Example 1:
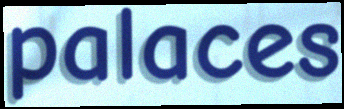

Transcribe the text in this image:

palaces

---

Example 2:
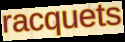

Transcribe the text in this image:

racquets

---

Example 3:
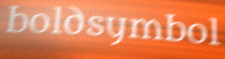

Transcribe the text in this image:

boldsymbol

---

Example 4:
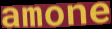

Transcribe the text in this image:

amone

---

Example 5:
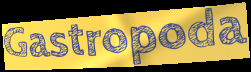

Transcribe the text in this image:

Gastropoda